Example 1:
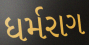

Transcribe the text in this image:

ધર્મરાગ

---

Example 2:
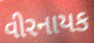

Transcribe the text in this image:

વીરનાયક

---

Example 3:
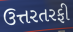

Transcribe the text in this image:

ઉત્તરતરફી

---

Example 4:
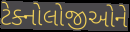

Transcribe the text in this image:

ટેક્નોલોજીઓને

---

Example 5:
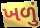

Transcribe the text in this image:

ખળું